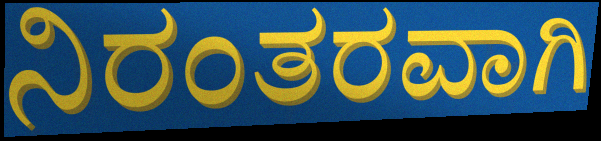
ನಿರಂತರವಾಗಿ